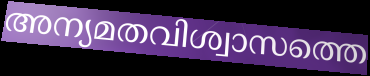
അന്യമതവിശ്വാസത്തെ